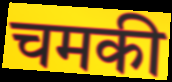
चमकी